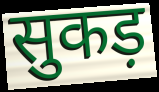
सुकड़